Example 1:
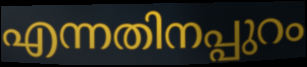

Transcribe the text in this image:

എന്നതിനപ്പുറം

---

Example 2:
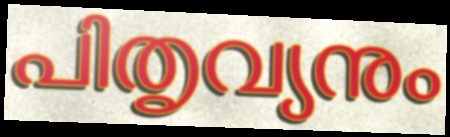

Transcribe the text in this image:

പിതൃവ്യനും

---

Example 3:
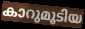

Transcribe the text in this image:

കാറുമൂടിയ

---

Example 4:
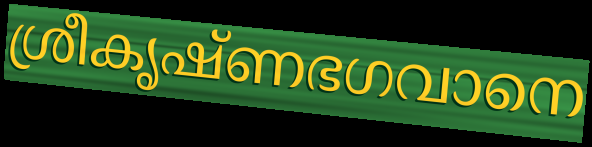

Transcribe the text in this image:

ശ്രീകൃഷ്ണഭഗവാനെ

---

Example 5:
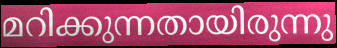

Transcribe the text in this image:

മറിക്കുന്നതായിരുന്നു